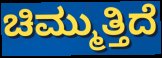
ಚಿಮ್ಮುತ್ತಿದೆ